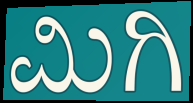
ಮಿಗಿ